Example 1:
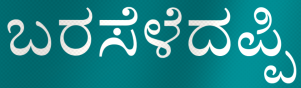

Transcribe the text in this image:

ಬರಸೆಳೆದಪ್ಪಿ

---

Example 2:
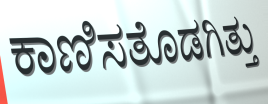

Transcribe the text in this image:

ಕಾಣಿಸತೊಡಗಿತ್ತು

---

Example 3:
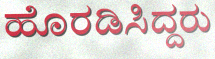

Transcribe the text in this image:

ಹೊರಡಿಸಿದ್ದರು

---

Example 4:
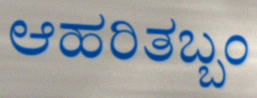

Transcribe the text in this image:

ಆಹರಿತಬ್ಬಂ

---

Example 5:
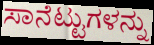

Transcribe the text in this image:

ಸಾನೆಟ್ಟುಗಳನ್ನು